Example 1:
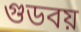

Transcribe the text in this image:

গুডবয়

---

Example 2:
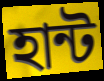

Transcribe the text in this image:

হান্ট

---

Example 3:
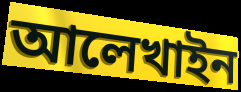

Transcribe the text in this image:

আলেখাইন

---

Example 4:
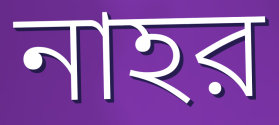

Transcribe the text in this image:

নাহর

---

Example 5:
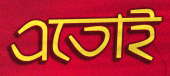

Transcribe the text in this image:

এতোই